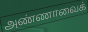
அண்ணாவைக்